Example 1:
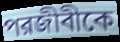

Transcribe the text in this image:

পরজীবীকে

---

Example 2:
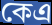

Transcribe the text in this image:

কেএ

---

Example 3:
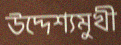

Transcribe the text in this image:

উদ্দেশ্যমুখী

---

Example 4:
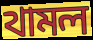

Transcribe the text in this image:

থামল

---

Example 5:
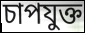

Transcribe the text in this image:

চাপযুক্ত